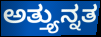
ಅತ್ತ್ಯುನ್ನತ